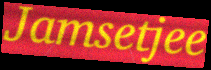
Jamsetjee